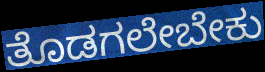
ತೊಡಗಲೇಬೇಕು